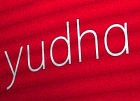
yudha